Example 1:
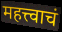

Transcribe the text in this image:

महत्त्वाचं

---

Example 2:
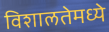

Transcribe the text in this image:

विशालतेमध्ये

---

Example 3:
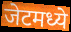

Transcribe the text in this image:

जेटमध्ये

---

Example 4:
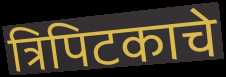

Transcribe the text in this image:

त्रिपिटकाचे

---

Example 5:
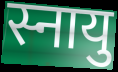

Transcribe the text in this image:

स्नायु